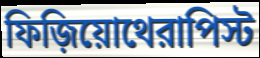
ফিজ়িয়োথেরাপিস্ট